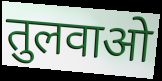
तुलवाओ